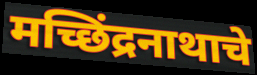
मच्छिंद्रनाथाचे